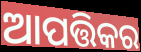
ଆପତ୍ତିକର